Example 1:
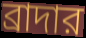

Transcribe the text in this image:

ব্রাদার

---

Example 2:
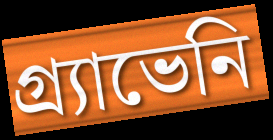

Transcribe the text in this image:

গ্র্যাভেনি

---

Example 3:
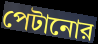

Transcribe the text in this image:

পেটানোর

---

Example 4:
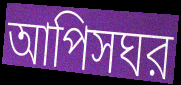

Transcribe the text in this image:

আপিসঘর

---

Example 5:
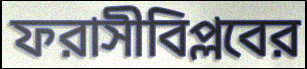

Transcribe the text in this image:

ফরাসীবিপ্লবের